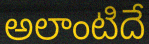
అలాంటిదే